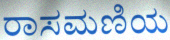
ರಾಸಮಣಿಯ